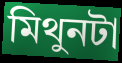
মিথুনটা